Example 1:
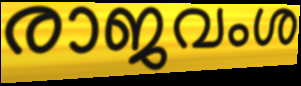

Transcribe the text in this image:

രാജവംശ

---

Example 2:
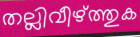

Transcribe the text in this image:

തല്ലിവീഴ്ത്തുക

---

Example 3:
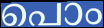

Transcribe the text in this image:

പൊം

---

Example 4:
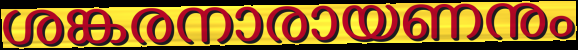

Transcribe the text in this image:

ശങ്കരനാരായണനും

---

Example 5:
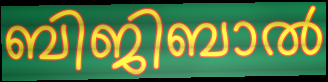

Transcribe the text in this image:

ബിജിബാൽ